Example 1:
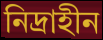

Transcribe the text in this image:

নিদ্রাহীন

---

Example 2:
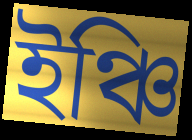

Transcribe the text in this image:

ইঞ্চি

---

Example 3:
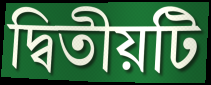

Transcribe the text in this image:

দ্বিতীয়টি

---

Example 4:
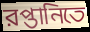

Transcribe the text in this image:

রপ্তানিতে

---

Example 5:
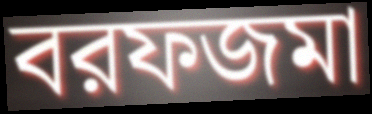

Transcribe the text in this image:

বরফজমা